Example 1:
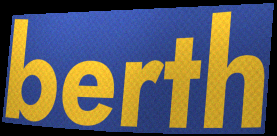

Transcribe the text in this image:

berth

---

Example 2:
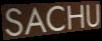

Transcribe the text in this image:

SACHU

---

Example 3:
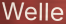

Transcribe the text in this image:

Welle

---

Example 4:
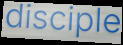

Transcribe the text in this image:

disciple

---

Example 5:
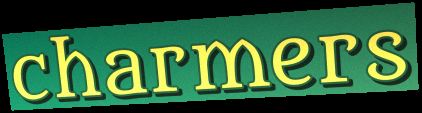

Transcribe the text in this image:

charmers